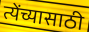
त्येंच्यासाठी